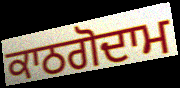
ਕਾਠਗੋਦਾਮ